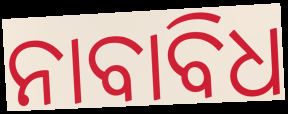
ନାବାବିଧ